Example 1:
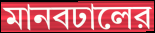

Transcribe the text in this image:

মানবঢালের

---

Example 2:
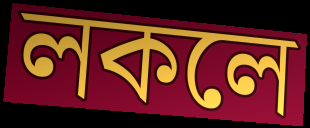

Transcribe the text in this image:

লকলে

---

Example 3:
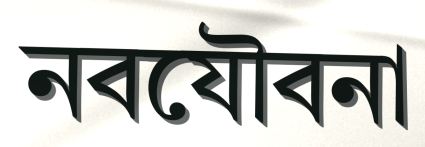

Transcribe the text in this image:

নবযৌবনা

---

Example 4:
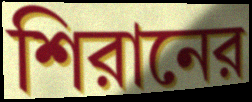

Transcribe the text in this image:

শিরানের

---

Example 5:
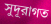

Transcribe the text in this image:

সুদূরাগত